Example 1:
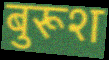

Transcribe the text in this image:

बुरूश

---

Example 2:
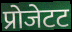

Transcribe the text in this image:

प्रोजेटट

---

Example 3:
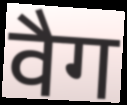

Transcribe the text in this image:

वैग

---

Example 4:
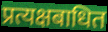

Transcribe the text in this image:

प्रत्यक्षबाधित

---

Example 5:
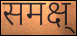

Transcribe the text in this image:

समक्ष्